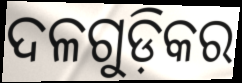
ଦଳଗୁଡ଼ିକର